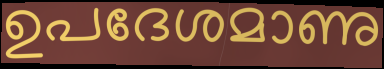
ഉപദേശമാണു